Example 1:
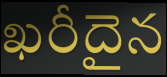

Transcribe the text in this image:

ఖరీదైన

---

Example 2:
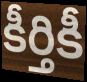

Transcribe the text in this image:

కీర్తికీ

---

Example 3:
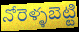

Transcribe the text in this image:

నోరెళ్ళబెట్టి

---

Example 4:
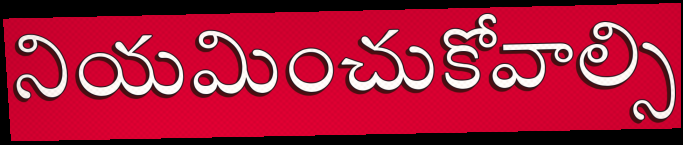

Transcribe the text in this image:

నియమించుకోవాల్సి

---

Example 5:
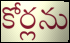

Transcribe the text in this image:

కోర్లను